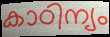
കാഠിന്യം